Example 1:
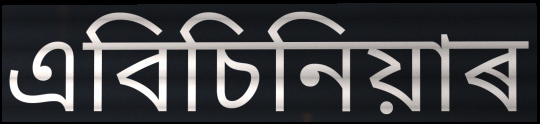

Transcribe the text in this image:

এবিচিনিয়াৰ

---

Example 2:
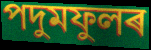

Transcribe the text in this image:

পদুমফুলৰ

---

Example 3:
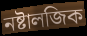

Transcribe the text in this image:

নষ্টালজিক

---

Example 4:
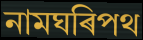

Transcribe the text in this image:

নামঘৰিপথ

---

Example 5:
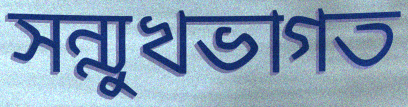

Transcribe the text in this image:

সন্মুখভাগত